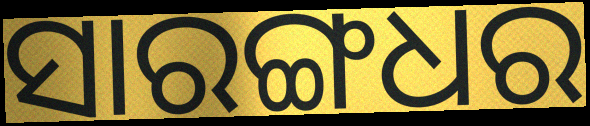
ସାରଙ୍ଗଧର